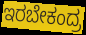
ಇರಬೇಕಂದ್ರ